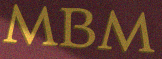
MBM